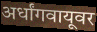
अर्धांगवायूवर